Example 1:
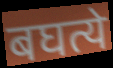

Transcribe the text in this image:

बघत्ये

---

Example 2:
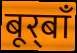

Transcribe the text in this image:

बूर्‌बाँ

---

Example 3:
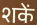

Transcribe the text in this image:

शकें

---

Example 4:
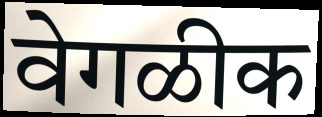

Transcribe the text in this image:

वेगळीक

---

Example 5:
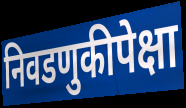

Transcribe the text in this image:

निवडणुकीपेक्षा